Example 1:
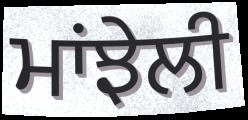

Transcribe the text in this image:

ਮਾਂਝੇਲੀ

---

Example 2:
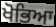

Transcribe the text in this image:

ਖੋਭਿਆ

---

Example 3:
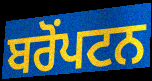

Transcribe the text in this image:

ਬਰੋਂਪਟਨ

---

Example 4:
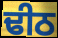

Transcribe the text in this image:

ਢੀਠ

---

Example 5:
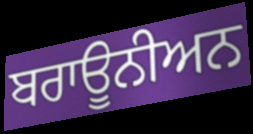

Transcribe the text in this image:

ਬਰਾਊਨੀਅਨ